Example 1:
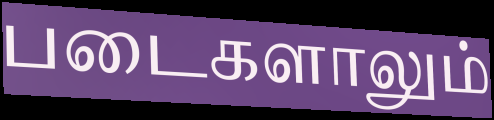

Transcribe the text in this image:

படைகளாலும்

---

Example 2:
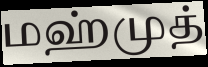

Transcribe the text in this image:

மஹ்முத்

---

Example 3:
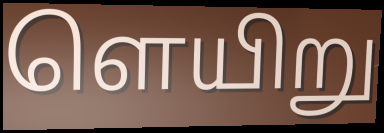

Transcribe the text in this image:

ளெயிறு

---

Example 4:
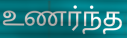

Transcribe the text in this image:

உணர்ந்த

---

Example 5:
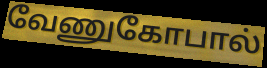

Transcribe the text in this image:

வேணுகோபால்